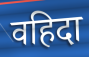
वहिदा